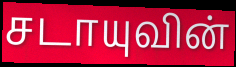
சடாயுவின்